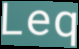
Leq